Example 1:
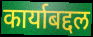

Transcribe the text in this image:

कार्याबद्दल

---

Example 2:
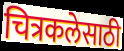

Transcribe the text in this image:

चित्रकलेसाठी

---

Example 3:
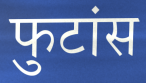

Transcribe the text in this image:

फुटांस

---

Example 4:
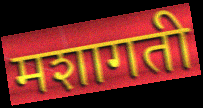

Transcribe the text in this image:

मशागती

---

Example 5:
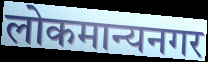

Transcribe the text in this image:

लोकमान्यनगर